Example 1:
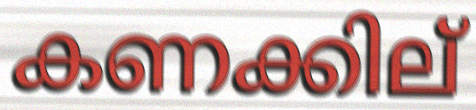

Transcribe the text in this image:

കണക്കില്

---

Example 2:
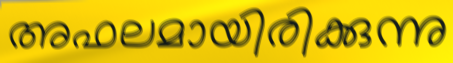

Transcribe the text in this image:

അഫലമായിരിക്കുന്നു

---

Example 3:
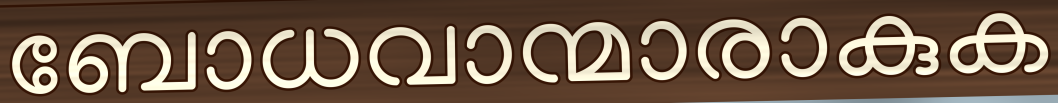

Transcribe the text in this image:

ബോധവാന്മാരാകുക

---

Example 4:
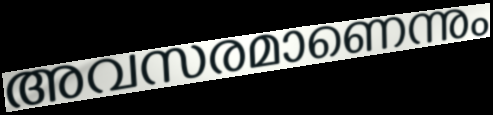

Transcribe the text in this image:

അവസരമാണെന്നും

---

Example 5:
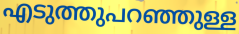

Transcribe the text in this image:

എടുത്തുപറഞ്ഞുള്ള